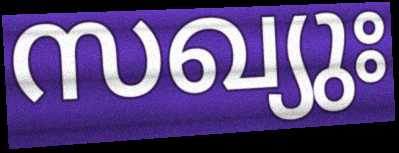
സഖ്യുഃ